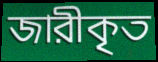
জারীকৃত